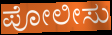
ಪೋಲೀಸು